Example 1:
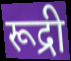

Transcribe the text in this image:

रूद्री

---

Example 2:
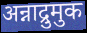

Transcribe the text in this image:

अन्नाद्रुमुक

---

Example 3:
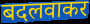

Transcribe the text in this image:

बदलवाकर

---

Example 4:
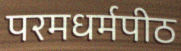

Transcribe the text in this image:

परमधर्मपीठ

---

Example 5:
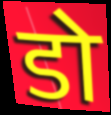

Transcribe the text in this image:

डो